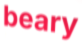
beary